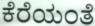
ಕೆರೆಯಂತೆ